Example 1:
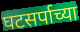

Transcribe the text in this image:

घटसर्पाच्या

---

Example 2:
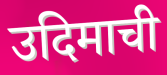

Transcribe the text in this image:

उदिमाची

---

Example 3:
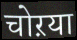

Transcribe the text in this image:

चोऱया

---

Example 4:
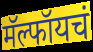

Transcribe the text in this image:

मॅल्फॉयचं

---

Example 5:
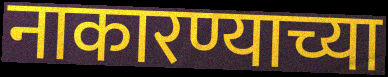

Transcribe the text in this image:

नाकारण्याच्या